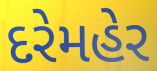
દરેમહેર